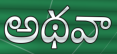
అథవా